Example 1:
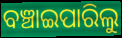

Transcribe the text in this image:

ବଞ୍ଚାଇପାରିଲୁ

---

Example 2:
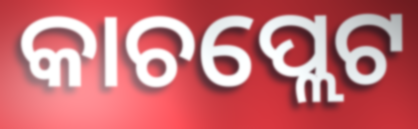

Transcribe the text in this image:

କାଚପ୍ଲେଟ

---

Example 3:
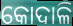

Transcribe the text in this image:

କୋଦାଳି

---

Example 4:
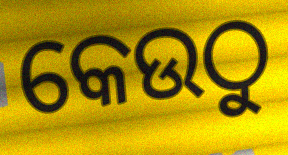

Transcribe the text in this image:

କେଉଠୁ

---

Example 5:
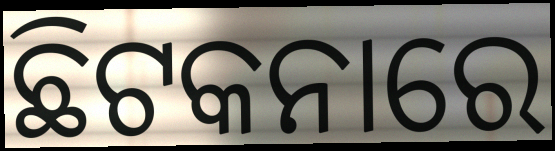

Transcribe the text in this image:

ଛିଟକନାରେ